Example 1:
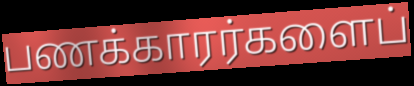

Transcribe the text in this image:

பணக்காரர்களைப்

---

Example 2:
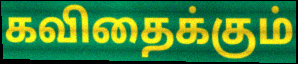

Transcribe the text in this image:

கவிதைக்கும்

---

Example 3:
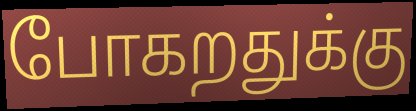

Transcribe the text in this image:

போகறதுக்கு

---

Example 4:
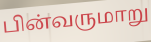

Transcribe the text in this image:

பின்வருமாறு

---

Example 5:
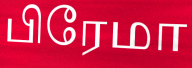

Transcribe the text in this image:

பிரேமா